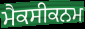
ਮੈਕਸੀਕਨਮ